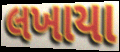
લખાયા